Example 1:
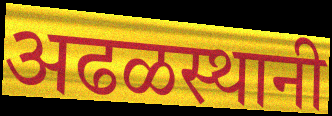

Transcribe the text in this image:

अढळस्थानी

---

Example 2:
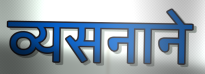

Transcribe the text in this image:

व्यसनाने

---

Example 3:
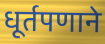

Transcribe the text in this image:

धूर्तपणाने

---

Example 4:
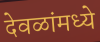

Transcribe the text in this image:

देवळांमध्ये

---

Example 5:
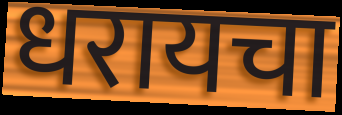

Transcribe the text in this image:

धरायचा